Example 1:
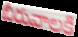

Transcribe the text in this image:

బీరువాలకి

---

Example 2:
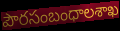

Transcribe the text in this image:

పౌరసంబంధాలశాఖ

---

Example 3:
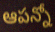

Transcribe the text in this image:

ఆపన్నో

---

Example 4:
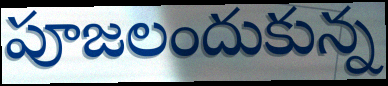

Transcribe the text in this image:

పూజలందుకున్న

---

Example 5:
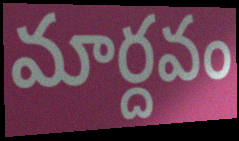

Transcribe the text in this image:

మార్దవం